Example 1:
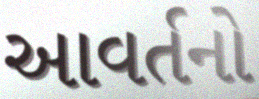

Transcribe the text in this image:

આવર્તનો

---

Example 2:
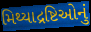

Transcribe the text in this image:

મિથ્યાદ્રષ્ટિઓનું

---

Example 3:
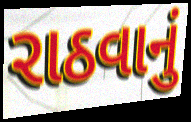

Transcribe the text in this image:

રાઠવાનું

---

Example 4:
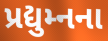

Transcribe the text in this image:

પ્રદ્યુમ્નના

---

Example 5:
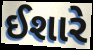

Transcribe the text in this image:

ઈશારે